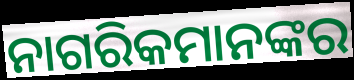
ନାଗରିକମାନଙ୍କର